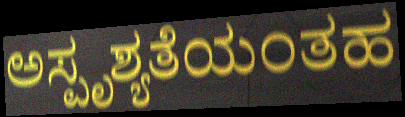
ಅಸ್ಪೃಶ್ಯತೆಯಂತಹ